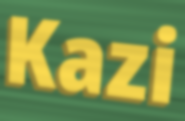
Kazi